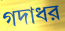
গদাধর